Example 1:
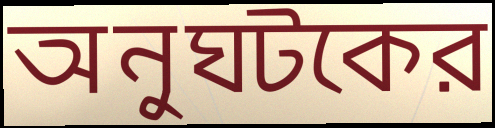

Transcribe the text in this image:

অনুঘটকের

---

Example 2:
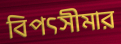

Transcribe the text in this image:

বিপৎসীমার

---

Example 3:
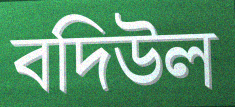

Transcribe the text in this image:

বদিউল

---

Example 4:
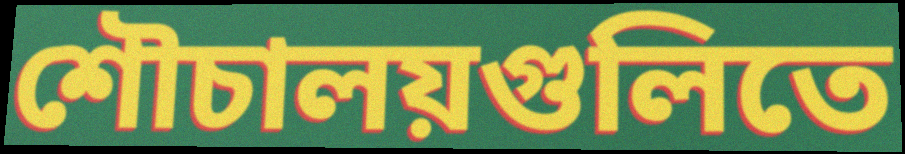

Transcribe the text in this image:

শৌচালয়গুলিতে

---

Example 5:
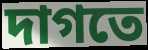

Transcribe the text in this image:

দাগতে